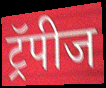
ट्रॅपीज